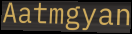
Aatmgyan